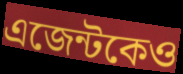
এজেন্টকেও